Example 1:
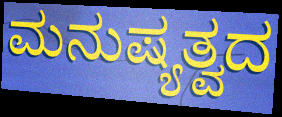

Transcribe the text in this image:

ಮನುಷ್ಯತ್ವದ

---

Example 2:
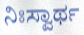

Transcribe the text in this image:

ನಿಃಸ್ವಾರ್ಥ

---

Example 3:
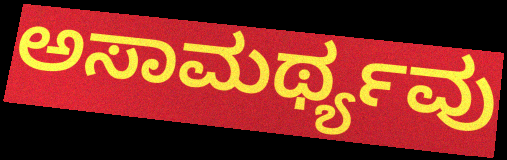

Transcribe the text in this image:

ಅಸಾಮರ್ಥ್ಯವು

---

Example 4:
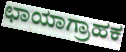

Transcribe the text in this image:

ಛಾಯಾಗ್ರಾಹಕ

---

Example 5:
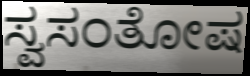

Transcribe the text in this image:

ಸ್ವಸಂತೋಷ